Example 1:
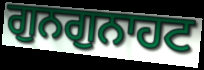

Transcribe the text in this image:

ਗੁਨਗੁਨਾਹਟ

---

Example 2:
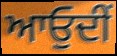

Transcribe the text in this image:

ਆਓੁਦੀਂ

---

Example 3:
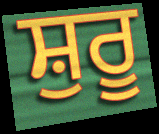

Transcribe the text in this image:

ਸ਼ੁਰੂ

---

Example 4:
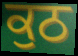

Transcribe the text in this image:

ਕੁਠ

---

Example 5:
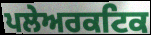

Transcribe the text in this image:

ਪਲੇਅਰਕਟਿਕ